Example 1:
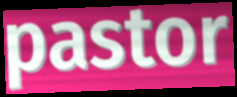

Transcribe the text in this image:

pastor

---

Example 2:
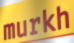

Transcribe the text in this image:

murkh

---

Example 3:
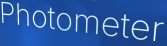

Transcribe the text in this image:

Photometer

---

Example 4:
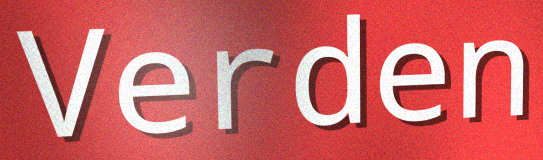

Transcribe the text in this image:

Verden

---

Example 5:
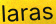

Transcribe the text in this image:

laras